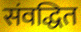
संवद्धित